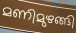
മണിമുഴങ്ങി